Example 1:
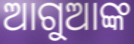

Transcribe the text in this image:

ଆଗୁଆଙ୍କ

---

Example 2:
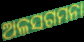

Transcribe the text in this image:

ଅଳସଗମନା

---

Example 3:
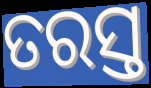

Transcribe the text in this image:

ତରସ୍ତ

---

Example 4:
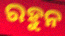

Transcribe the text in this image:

ରହୁନ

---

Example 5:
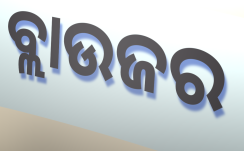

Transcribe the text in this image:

ବ୍ଲାଉଜର